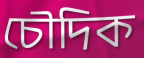
চৌদিক